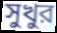
সুখুর